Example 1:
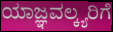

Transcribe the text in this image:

ಯಾಜ್ಞವಲ್ಕ್ಯರಿಗೆ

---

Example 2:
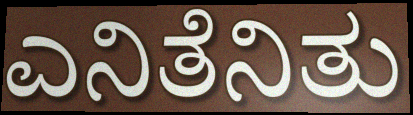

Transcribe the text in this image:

ಎನಿತೆನಿತು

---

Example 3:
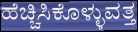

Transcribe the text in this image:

ಹೆಚ್ಚಿಸಿಕೊಳ್ಳುವತ್ತ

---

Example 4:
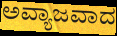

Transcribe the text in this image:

ಅವ್ಯಾಜವಾದ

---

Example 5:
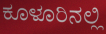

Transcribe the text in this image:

ಕೂಳೂರಿನಲ್ಲಿ